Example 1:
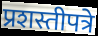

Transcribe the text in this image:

प्रशस्तीपत्रे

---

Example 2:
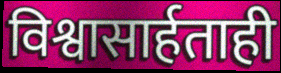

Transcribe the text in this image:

विश्वासार्हताही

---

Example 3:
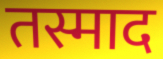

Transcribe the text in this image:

तस्माद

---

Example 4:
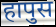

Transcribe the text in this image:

हापुस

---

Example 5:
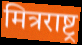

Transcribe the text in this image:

मित्रराष्ट्र